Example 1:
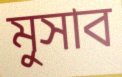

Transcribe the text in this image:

মুসাব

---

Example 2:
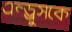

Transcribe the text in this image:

এন্ড্রুসকে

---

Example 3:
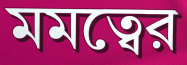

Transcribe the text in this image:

মমত্বের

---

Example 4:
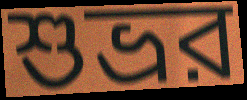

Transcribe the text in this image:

শুভ্রর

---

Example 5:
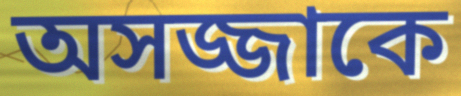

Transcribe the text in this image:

অসজ্জাকে